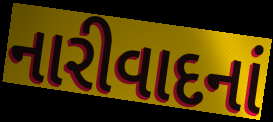
નારીવાદનાં